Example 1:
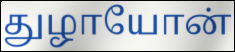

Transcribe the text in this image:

துழாயோன்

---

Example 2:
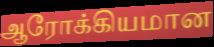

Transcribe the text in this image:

ஆரோக்கியமான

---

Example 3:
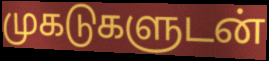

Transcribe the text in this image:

முகடுகளுடன்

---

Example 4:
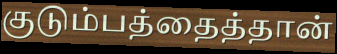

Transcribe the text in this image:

குடும்பத்தைத்தான்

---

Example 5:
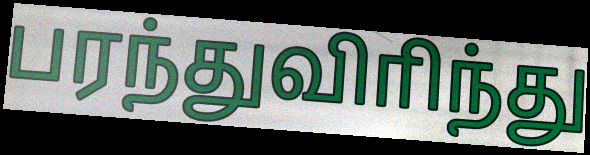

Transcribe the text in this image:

பரந்துவிரிந்து